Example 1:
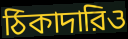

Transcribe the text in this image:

ঠিকাদারিও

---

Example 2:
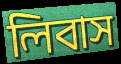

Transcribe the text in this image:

লিবাস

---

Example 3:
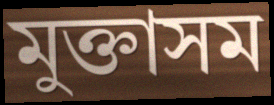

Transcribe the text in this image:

মুক্তাসম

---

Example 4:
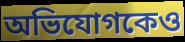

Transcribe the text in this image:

অভিযোগকেও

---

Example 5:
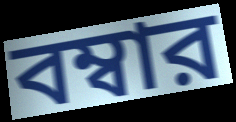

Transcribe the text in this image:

বম্বার